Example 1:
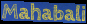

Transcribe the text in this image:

Mahabali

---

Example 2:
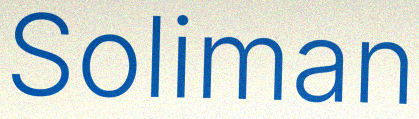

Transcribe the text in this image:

Soliman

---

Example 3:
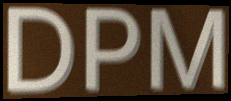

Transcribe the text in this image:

DPM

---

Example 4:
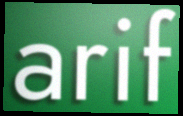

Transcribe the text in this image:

arif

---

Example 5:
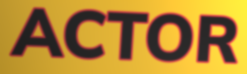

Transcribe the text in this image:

ACTOR